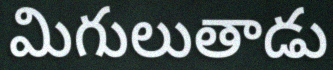
మిగులుతాడు